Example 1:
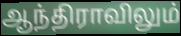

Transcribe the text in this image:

ஆந்திராவிலும்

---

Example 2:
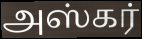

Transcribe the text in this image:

அஸ்கர்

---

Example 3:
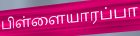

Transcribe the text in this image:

பிள்ளையாரப்பா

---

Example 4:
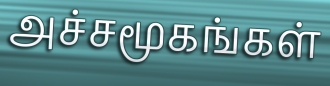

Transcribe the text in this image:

அச்சமூகங்கள்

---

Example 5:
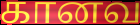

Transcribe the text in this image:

கானவ